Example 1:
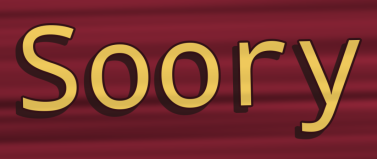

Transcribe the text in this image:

Soory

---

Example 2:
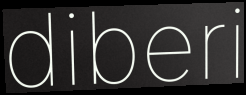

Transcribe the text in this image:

diberi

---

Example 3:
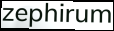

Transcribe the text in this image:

zephirum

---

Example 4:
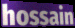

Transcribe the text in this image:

hossain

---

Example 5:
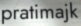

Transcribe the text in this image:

pratimajk